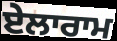
ਏਲਾਰਾਮ